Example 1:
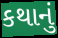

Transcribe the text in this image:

કથાનું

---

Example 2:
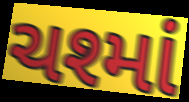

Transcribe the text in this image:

ચશ્માં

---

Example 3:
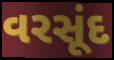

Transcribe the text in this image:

વરસૂંદ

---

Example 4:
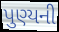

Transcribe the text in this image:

પુણ્યની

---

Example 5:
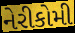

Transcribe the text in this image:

નેરીકોમી